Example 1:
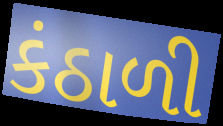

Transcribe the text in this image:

કંઠાળી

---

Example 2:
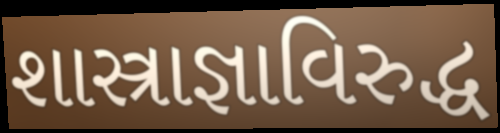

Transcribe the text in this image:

શાસ્ત્રાજ્ઞાવિરુદ્ધ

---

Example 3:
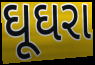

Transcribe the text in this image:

ઘૂઘરા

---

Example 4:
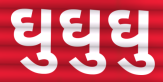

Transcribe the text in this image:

ઘુઘુઘુ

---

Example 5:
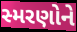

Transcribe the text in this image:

સ્મરણોને